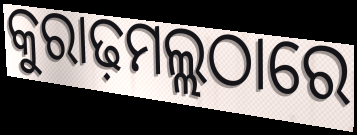
କୁରାଢ଼ମଲ୍ଲଠାରେ